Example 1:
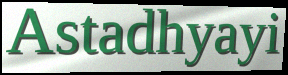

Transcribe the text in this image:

Astadhyayi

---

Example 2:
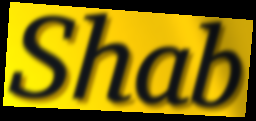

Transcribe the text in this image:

Shab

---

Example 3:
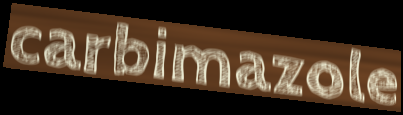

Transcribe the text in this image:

carbimazole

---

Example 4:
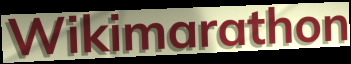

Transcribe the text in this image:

Wikimarathon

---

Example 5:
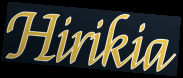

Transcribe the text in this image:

Hirikia